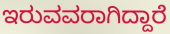
ಇರುವವರಾಗಿದ್ದಾರೆ